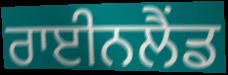
ਰਾਈਨਲੈਂਡ